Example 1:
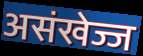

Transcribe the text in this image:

असंखेज्ज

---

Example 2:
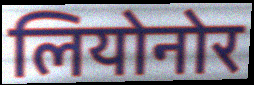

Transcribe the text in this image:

लियोनोर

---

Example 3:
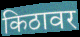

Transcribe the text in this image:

किठावर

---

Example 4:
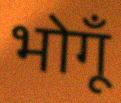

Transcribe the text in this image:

भोगूँ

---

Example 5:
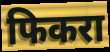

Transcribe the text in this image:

फिकरा